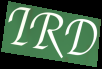
IRD